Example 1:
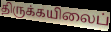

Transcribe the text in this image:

திருக்கயிலைப்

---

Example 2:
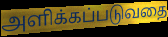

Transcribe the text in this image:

அளிக்கப்படுவதை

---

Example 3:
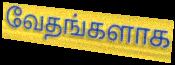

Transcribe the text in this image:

வேதங்களாக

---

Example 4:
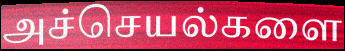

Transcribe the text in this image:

அச்செயல்களை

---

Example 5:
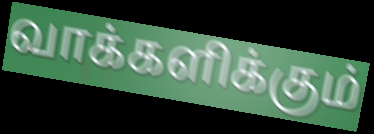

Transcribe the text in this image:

வாக்களிக்கும்